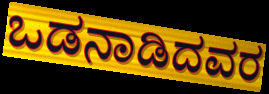
ಒಡನಾಡಿದವರ